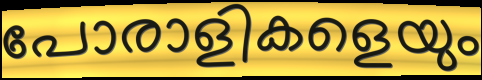
പോരാളികളെയും